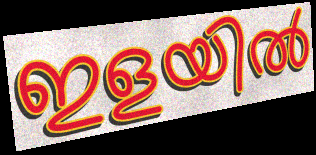
ഇളയിൽ